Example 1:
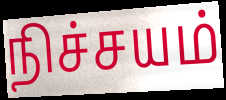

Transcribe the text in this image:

நிச்சயம்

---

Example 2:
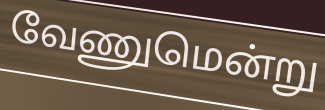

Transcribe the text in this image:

வேணுமென்று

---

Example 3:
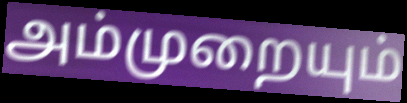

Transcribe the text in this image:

அம்முறையும்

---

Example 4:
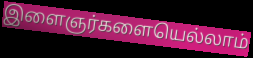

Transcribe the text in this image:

இளைஞர்களையெல்லாம்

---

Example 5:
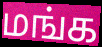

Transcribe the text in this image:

மங்க